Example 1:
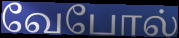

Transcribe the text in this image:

வேபோல்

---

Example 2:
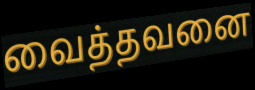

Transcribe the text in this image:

வைத்தவனை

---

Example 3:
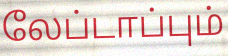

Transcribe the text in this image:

லேப்டாப்பும்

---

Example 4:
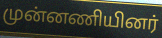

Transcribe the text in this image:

முன்னணியினர்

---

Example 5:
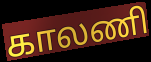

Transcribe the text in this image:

காலணி